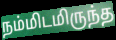
நம்மிடமிருந்த